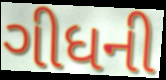
ગીધની